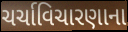
ચર્ચાવિચારણાના